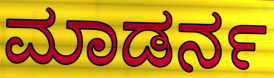
ಮಾಡರ್ನ